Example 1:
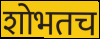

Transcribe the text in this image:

शोभतच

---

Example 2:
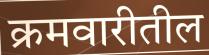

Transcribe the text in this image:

क्रमवारीतील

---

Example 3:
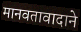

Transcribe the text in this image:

मानवतावादाने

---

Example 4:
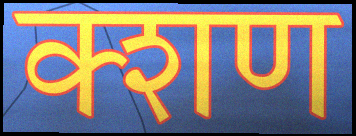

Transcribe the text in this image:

क्शण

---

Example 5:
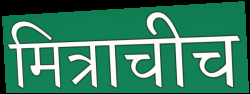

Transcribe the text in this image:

मित्राचीच